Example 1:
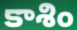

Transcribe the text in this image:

కాశిం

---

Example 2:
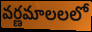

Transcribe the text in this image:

వర్ణమాలలలో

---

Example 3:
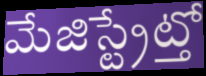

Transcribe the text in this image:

మేజిస్ట్రేట్తో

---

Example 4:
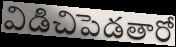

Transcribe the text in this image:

విడిచిపెడతారో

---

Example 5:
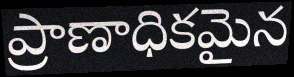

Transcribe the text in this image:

ప్రాణాధికమైన